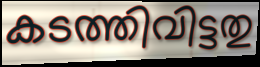
കടത്തിവിട്ടതു